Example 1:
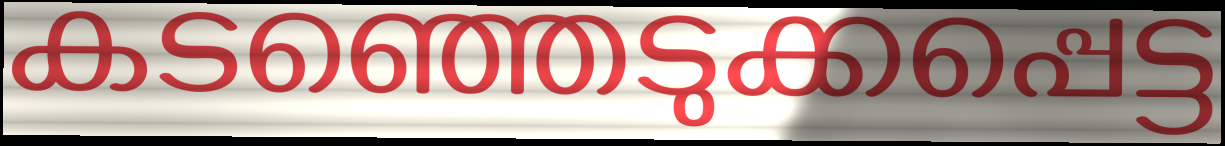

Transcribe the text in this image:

കടഞ്ഞെടുക്കപ്പെട്ട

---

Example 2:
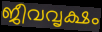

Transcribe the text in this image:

ജീവവൃക്ഷം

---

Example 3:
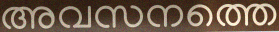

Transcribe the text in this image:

അവസനത്തെ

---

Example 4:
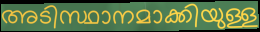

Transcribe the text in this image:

അടിസ്ഥാനമാക്കിയുള്ള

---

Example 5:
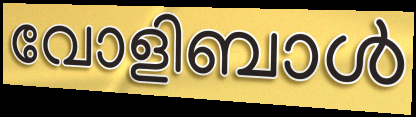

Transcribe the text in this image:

വോളിബാൾ